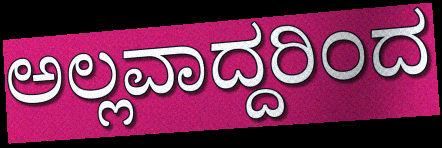
ಅಲ್ಲವಾದ್ದರಿಂದ